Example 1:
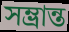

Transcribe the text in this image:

সম্ভ্ৰান্ত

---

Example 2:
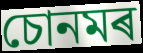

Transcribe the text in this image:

চোনমৰ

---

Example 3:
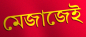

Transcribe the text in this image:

মেজাজেই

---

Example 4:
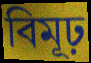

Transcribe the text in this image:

বিমূঢ়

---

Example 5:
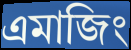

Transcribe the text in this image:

এমাজিং